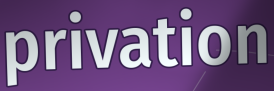
privation